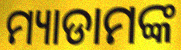
ମ୍ୟାଡାମଙ୍କ